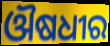
ଔଷଧୀର